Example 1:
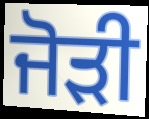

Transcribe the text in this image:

ਜੋੜੀ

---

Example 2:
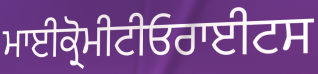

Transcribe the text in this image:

ਮਾਈਕ੍ਰੋਮੀਟੀਓਰਾਈਟਸ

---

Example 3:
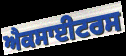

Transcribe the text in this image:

ਐਕਸਾਈਟਰਸ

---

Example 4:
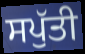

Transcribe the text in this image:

ਸਪੁੱਤੀ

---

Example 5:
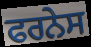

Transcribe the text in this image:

ਫਰਨੇਸ